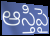
ఆస్తిపై